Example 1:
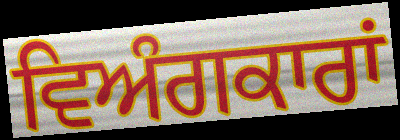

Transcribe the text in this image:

ਵਿਅੰਗਕਾਰਾਂ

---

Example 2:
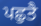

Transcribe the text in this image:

ਪਛੁਤੈ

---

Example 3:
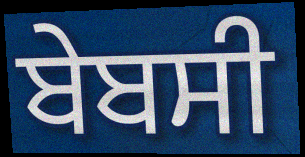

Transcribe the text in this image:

ਬੇਬਸੀ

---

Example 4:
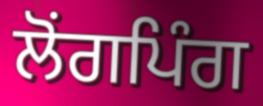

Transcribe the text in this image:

ਲੋਂਗਪਿੰਗ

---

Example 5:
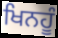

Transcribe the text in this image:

ਖਿਨਹੂੰ